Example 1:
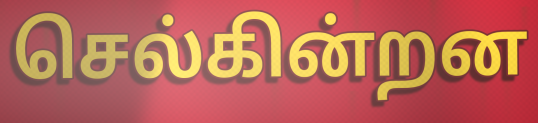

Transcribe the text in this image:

செல்கின்றன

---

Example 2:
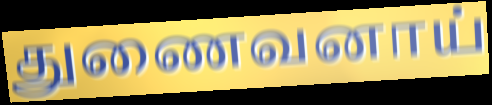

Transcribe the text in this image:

துணைவனாய்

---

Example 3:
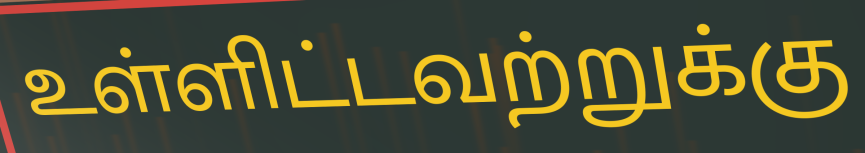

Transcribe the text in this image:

உள்ளிட்டவற்றுக்கு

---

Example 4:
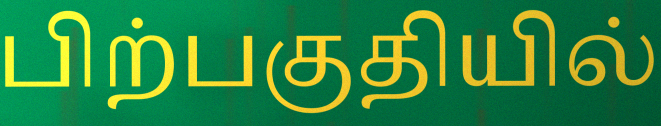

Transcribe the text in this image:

பிற்பகுதியில்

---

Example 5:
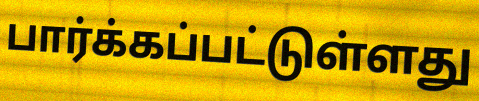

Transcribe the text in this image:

பார்க்கப்பட்டுள்ளது